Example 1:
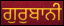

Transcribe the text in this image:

ਗੁਰੁਬਾਨੀ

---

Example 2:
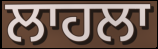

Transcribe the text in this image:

ਲਾਹਲਾ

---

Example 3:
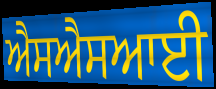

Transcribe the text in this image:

ਐਸਐਸਆਈ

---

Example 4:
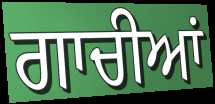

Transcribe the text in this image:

ਗਾਚੀਆਂ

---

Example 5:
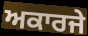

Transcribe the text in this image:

ਅਕਾਰਜੇ